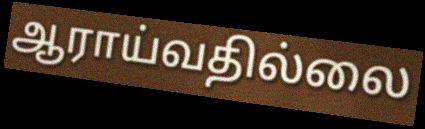
ஆராய்வதில்லை